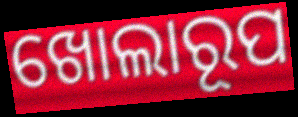
ଖୋଲାରୂପ